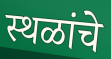
स्थळांचे